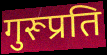
गुरूप्रति